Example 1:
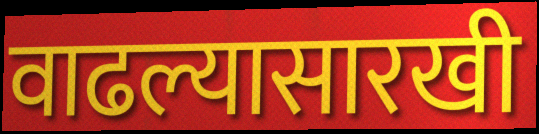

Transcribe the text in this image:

वाढल्यासारखी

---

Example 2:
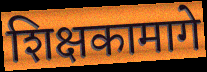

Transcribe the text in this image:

शिक्षकामागे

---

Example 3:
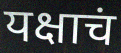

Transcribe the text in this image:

यक्षाचं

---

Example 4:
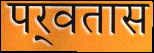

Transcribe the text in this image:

पर्वतास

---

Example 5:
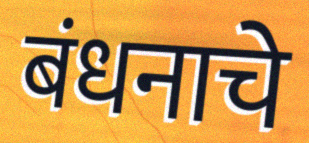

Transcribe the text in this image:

बंधनाचे